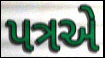
પત્રએ